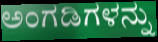
ಅಂಗಡಿಗಳನ್ನು